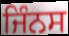
ਜਿੰਨਸ